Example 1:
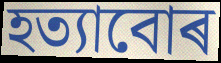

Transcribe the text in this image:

হত্যাবোৰ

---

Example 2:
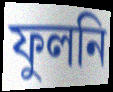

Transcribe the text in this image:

ফুলনি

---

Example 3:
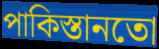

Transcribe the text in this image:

পাকিস্তানতো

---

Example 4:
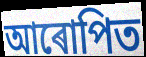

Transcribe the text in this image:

আৰোপিত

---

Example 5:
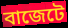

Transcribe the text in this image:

বাজেটে